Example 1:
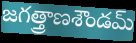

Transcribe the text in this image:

జగత్త్రాణశౌండమ్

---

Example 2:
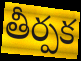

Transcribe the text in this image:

తీర్పక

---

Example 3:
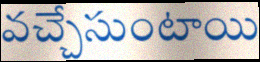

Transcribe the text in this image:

వచ్చేసుంటాయి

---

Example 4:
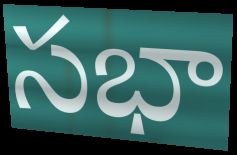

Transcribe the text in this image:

సభా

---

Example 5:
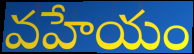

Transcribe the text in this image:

వహేయం